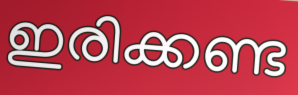
ഇരിക്കണ്ട